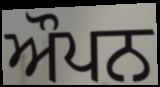
ਔਪਨ